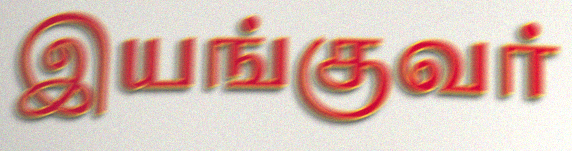
இயங்குவர்